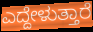
ಎದ್ದೇಳುತ್ತಾರೆ